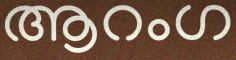
ആറംഗ